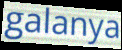
galanya